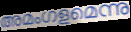
അമംഗളമെന്നു